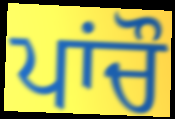
ਪਾਂਚੌ